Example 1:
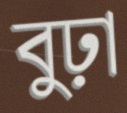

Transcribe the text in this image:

বুঢ়া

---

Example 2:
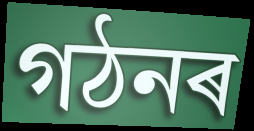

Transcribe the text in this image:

গঠনৰ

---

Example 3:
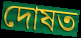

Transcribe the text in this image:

দোষত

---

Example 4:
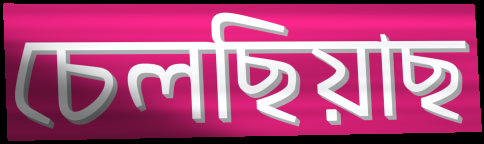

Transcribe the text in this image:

চেলছিয়াছ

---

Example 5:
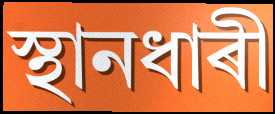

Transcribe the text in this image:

স্থানধাৰী